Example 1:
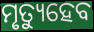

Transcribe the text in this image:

ମୃତ୍ୟୁହେବ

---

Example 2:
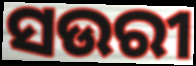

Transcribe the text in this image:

ସଉରୀ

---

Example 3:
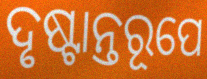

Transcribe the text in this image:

ଦୃଷ୍ଟାନ୍ତରୂପେ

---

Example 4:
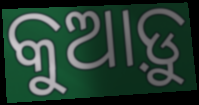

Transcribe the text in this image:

କୁଆଡ଼ୁ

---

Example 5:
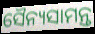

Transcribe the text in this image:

ସୈନ୍ୟସାମନ୍ତ